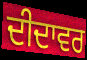
ਦੀਦਾਵਰ